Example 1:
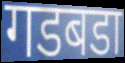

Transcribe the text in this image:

गडबडा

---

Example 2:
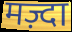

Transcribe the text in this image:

मज़्दा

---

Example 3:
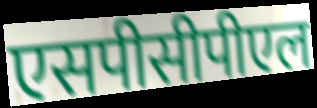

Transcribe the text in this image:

एसपीसीपीएल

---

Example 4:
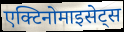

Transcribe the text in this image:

एक्टिनोमाइसेट्स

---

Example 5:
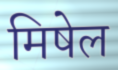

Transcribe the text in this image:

मिषेल